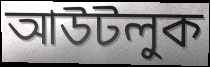
আউটলুক